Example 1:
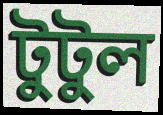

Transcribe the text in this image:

টুটুল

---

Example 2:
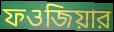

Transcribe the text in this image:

ফওজিয়ার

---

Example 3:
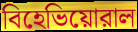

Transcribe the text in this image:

বিহেভিয়োরাল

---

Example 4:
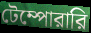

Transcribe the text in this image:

টেম্পোরারি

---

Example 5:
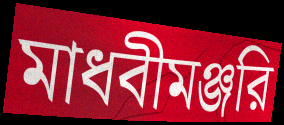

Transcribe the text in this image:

মাধবীমঞ্জরি